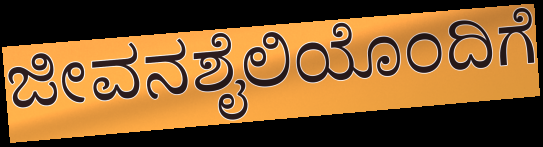
ಜೀವನಶೈಲಿಯೊಂದಿಗೆ